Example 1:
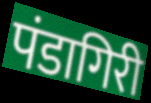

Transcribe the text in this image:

पंडागिरी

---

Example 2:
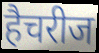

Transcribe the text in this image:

हैचरीज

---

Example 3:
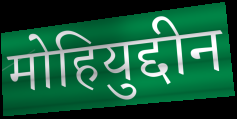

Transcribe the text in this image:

मोहियुद्दीन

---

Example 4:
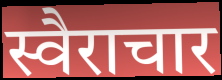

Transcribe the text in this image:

स्वैराचार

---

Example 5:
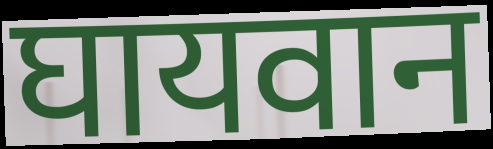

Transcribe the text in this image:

घायवान